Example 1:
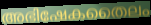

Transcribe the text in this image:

അഭിഷേകതൈലം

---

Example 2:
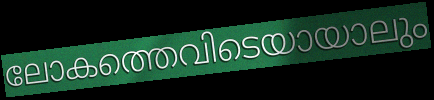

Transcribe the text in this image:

ലോകത്തെവിടെയായാലും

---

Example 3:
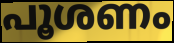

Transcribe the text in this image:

പൂശണം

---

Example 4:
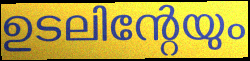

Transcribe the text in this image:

ഉടലിന്റേയും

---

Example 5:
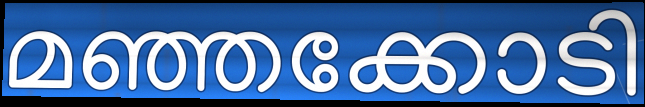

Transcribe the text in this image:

മഞ്ഞക്കോടി